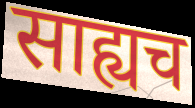
साह्यच